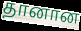
தானான